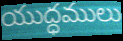
యుద్ధములు